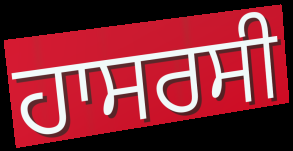
ਹਾਸਰਸੀ